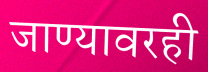
जाण्यावरही